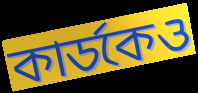
কার্ডকেও